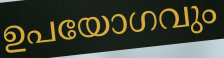
ഉപയോഗവും